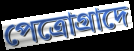
পেত্রোগ্রাদে